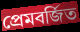
প্রেমবর্জিত